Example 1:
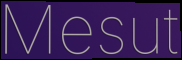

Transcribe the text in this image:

Mesut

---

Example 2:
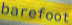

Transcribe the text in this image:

barefoot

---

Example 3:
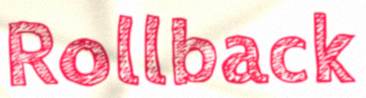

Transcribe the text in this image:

Rollback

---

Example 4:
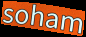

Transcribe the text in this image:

soham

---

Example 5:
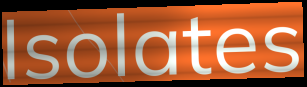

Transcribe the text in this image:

Isolates